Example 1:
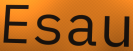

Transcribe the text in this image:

Esau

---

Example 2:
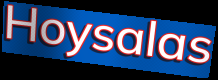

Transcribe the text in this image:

Hoysalas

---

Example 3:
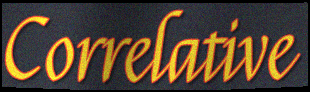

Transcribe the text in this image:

Correlative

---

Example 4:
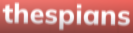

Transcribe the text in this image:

thespians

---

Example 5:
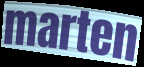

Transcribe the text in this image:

marten